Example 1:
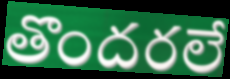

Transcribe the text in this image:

తొందరలే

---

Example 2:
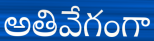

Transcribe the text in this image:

అతివేగంగా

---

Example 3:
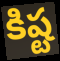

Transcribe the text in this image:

కిష్ట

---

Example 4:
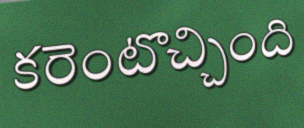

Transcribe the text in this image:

కరెంటొచ్చింది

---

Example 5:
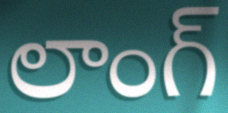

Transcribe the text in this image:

లాంగ్